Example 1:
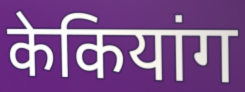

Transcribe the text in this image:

केकियांग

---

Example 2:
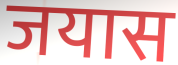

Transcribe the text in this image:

जयास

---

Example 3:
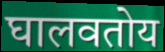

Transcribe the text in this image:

घालवतोय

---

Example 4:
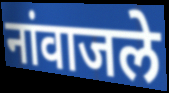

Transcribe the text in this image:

नांवाजले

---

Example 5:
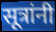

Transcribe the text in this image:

सूत्रांनी